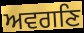
ਅਵਗਣਿ